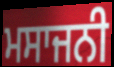
ਮਸਾਜਨੀ